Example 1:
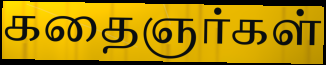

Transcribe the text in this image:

கதைஞர்கள்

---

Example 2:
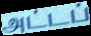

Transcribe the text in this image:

அட்டப்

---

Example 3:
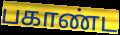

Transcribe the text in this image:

பகாண்ட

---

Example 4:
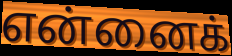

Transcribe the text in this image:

என்னைக்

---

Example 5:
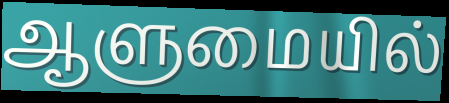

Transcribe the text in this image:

ஆளுமையில்